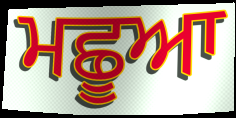
ਮਛੂਆ